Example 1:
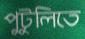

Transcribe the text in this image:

পুটুলিতে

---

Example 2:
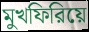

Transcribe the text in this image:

মুখফিরিয়ে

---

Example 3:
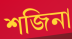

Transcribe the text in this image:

শজিনা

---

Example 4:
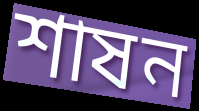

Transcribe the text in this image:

শাষন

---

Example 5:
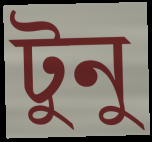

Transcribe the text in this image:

টুনু